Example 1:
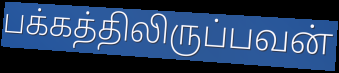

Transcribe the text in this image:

பக்கத்திலிருப்பவன்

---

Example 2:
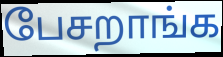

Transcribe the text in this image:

பேசறாங்க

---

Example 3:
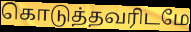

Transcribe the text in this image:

கொடுத்தவரிடமே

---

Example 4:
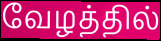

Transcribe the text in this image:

வேழத்தில்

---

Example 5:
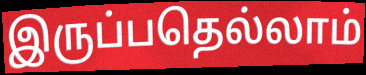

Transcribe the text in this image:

இருப்பதெல்லாம்